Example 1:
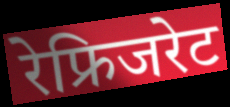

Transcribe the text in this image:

रेफ्रिजरेट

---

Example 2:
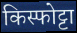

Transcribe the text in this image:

किस्फोट्टा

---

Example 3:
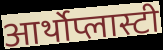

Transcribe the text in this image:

आर्थोप्लास्टी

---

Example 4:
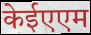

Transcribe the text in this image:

केईएएम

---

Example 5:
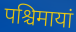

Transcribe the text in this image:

पश्चिमायां